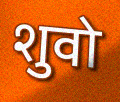
शुवो